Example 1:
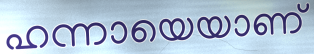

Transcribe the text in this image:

ഹന്നായെയാണ്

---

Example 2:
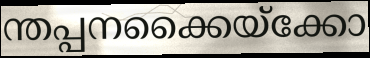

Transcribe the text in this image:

ന്തപ്പനക്കൈയ്ക്കോ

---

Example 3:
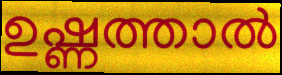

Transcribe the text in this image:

ഉഷ്ണത്താൽ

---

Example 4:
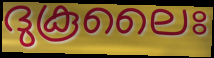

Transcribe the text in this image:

ദുകൂലൈഃ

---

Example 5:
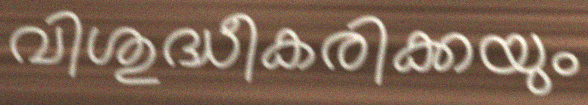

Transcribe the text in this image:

വിശുദ്ധീകരിക്കയും